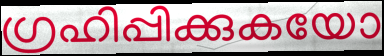
ഗ്രഹിപ്പിക്കുകയോ